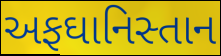
અફઘાનિસ્તાન